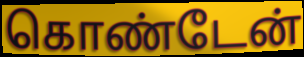
கொண்டேன்